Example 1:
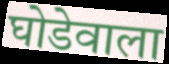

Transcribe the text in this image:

घोडेवाला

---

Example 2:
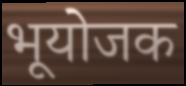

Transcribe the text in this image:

भूयोजक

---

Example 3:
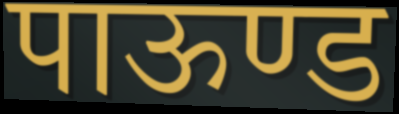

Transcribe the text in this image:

पाऊण्ड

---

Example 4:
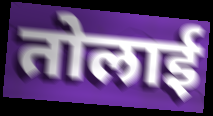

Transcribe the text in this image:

तोलाई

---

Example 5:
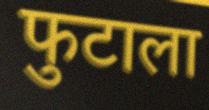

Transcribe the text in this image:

फुटाला